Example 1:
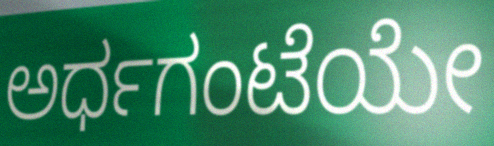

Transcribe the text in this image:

ಅರ್ಧಗಂಟೆಯೇ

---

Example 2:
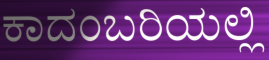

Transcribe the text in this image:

ಕಾದಂಬರಿಯಲ್ಲಿ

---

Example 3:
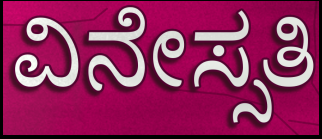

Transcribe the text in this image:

ವಿನೇಸ್ಸತಿ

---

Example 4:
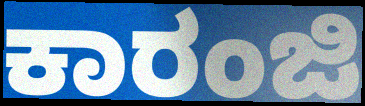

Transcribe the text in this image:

ಕಾರಂಜಿ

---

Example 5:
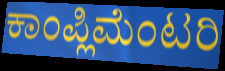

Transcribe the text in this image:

ಕಾಂಪ್ಲಿಮೆಂಟರಿ